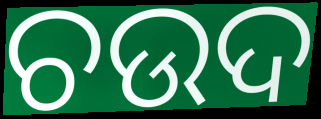
ଚଉଦ